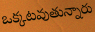
ఒక్కటవుతున్నారు